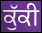
ਕੁੱਕੀ